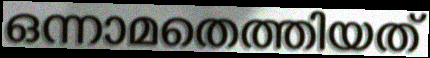
ഒന്നാമതെത്തിയത്